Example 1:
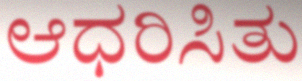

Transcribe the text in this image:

ಆಧರಿಸಿತು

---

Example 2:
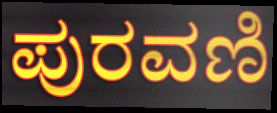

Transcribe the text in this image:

ಪುರವಣಿ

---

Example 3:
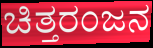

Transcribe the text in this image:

ಚಿತ್ತರಂಜನ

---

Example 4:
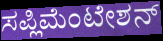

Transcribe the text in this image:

ಸಪ್ಲಿಮೆಂಟೇಶನ್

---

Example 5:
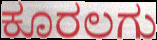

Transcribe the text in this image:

ಕೂರಲಗು